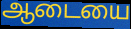
ஆடையை